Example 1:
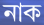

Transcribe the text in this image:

নাক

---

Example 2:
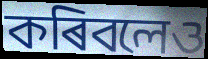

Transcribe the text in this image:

কৰিবলেও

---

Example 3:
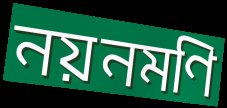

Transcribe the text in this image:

নয়নমণি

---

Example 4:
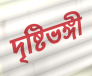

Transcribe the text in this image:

দৃষ্টিভঙ্গী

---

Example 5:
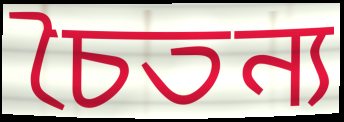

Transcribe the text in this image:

চৈতন্য